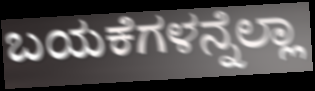
ಬಯಕೆಗಳನ್ನೆಲ್ಲಾ